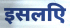
इसलएि